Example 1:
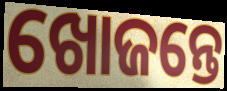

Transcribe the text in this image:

ଖୋଜନ୍ତେ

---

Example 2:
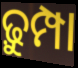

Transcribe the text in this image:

ଢ଼ୁମ୍ପା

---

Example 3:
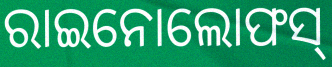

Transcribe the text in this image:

ରାଇନୋଲୋଫସ୍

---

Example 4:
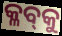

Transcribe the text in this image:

କ୍ଳବ୍‍କୁ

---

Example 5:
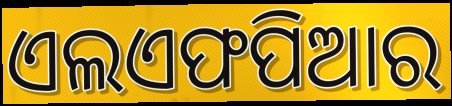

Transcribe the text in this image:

ଏଲଏଫପିଆର